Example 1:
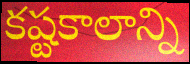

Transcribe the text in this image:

కష్టకాలాన్ని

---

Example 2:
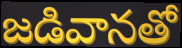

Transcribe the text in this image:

జడివానతో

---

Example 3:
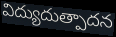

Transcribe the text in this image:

విద్యుదుత్పాదన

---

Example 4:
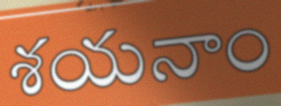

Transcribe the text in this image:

శయనాం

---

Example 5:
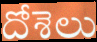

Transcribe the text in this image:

దోశెలు